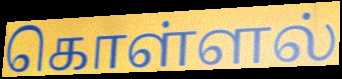
கொள்ளல்